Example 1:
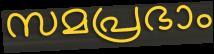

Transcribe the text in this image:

സമപ്രഭാം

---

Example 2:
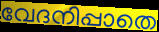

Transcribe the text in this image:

വേദനിപ്പാതെ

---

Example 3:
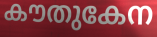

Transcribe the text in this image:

കൗതുകേന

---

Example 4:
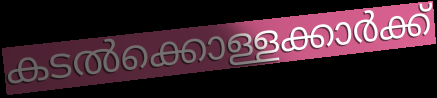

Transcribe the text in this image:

കടൽക്കൊള്ളക്കാർക്ക്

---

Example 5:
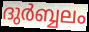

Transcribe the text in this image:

ദുർബ്ബലം